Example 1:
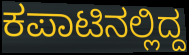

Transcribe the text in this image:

ಕಪಾಟಿನಲ್ಲಿದ್ದ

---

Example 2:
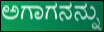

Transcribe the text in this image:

ಅಗಾಗನನ್ನು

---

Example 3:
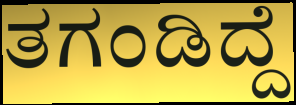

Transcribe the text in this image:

ತಗಂಡಿದ್ದೆ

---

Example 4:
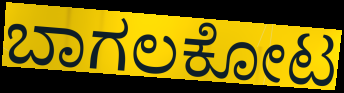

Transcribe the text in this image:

ಬಾಗಲಕೋಟ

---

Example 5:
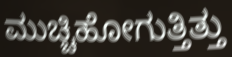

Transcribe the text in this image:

ಮುಚ್ಚಿಹೋಗುತ್ತಿತ್ತು